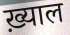
ख़्याल